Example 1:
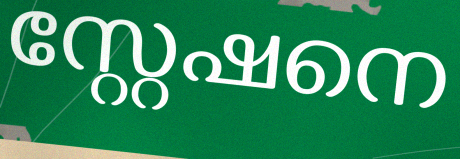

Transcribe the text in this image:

സ്റ്റേഷനെ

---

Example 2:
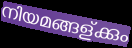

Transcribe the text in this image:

നിയമങ്ങള്ക്കും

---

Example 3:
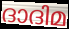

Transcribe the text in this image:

ദാദിമ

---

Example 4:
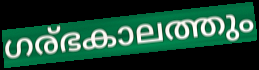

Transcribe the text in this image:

ഗര്ഭകാലത്തും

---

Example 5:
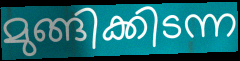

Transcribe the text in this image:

മുങ്ങിക്കിടന്ന